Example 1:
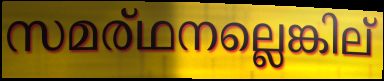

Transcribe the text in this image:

സമര്ഥനല്ലെങ്കില്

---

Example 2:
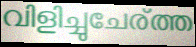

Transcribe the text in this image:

വിളിച്ചുചേര്ത്ത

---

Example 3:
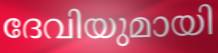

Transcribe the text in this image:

ദേവിയുമായി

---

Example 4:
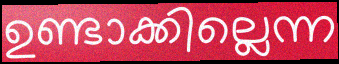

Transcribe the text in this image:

ഉണ്ടാക്കില്ലെന്ന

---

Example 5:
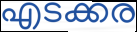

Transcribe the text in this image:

എടക്കര